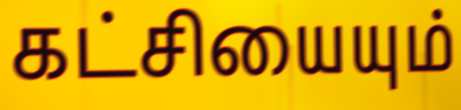
கட்சியையும்